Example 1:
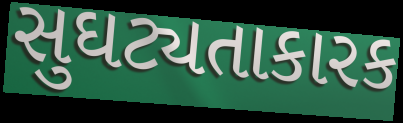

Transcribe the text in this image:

સુઘટ્યતાકારક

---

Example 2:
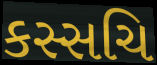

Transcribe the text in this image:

કસ્સચિ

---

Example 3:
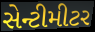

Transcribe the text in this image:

સેન્ટીમીટર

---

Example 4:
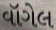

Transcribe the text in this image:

વૉગેલ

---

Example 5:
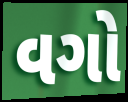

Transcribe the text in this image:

વગો